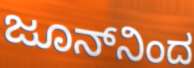
ಜೂನ್‌ನಿಂದ